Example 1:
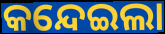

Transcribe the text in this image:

କନ୍ଦେଇଲା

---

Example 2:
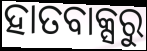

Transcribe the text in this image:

ହାତବାକ୍ସରୁ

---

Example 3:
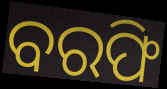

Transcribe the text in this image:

ବରଫି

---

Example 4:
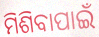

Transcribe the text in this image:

ମିଶିବାପାଇଁ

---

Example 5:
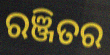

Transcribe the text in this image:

ରଞ୍ଜିତର